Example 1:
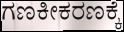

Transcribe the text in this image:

ಗಣಕೀಕರಣಕ್ಕೆ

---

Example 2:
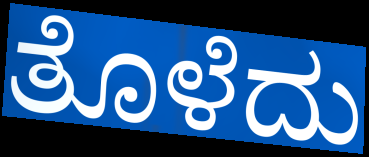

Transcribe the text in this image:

ತೊಳೆದು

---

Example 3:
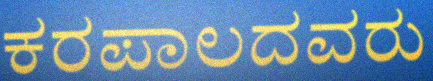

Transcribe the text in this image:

ಕರಪಾಲದವರು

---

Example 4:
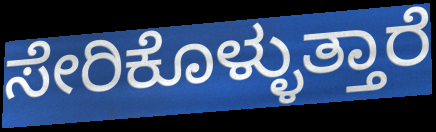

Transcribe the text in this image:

ಸೇರಿಕೊಳ್ಳುತ್ತಾರೆ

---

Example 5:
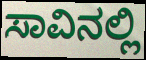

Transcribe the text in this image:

ಸಾವಿನಲ್ಲಿ